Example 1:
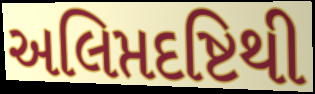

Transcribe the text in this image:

અલિપ્તદષ્ટિથી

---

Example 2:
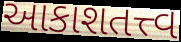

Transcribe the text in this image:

આકાશતત્ત્વ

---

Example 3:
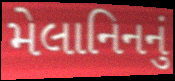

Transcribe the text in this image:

મેલાનિનનું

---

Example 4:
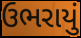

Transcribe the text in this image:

ઉભરાયું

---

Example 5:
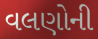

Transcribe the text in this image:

વલણોની